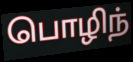
பொழிந்